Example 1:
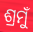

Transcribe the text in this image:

ଶ୍ରମୁଁ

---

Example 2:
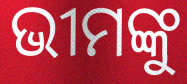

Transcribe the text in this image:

ଭୀମଙ୍କୁ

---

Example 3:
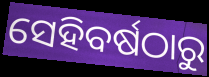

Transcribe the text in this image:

ସେହିବର୍ଷଠାରୁ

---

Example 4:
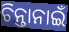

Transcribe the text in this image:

ଚିନ୍ତାନାଇଁ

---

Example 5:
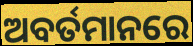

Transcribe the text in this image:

ଅବର୍ତମାନରେ